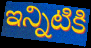
ఇన్నిటికి